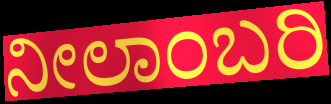
ನೀಲಾಂಬರಿ